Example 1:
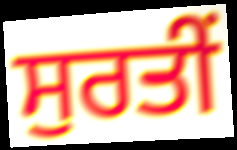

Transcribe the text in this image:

ਸੁਰਤੀਂ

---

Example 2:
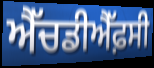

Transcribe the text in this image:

ਐੱਚਡੀਐੱਫ਼ਸੀ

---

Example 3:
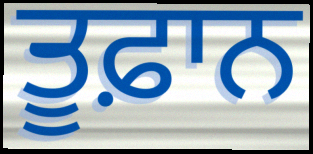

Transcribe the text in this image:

ਤੂਫ਼ਾਨ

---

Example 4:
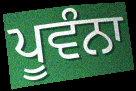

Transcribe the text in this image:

ਪੂਵੰਨਾ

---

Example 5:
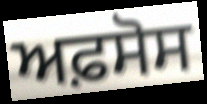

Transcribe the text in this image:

ਅਫ਼ਸੋਸ